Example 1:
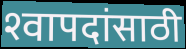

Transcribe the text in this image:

श्वापदांसाठी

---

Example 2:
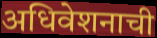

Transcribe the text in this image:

अधिवेशनाची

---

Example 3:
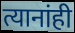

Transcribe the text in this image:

त्यानांही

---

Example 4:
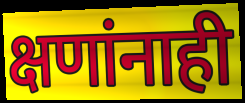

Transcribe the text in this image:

क्षणांनाही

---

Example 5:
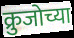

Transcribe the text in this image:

क्रुजोच्या